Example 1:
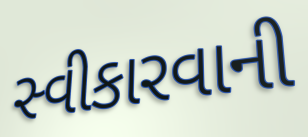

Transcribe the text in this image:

સ્વીકારવાની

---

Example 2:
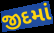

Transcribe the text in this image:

જીદમાં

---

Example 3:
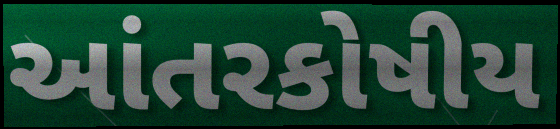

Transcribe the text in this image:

આંતરકોષીય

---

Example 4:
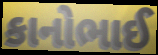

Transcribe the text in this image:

કાનોભાઈ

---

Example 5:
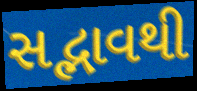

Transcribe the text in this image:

સદ્ભાવથી